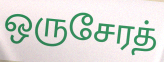
ஒருசேரத்